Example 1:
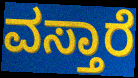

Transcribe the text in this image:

ವಸ್ತಾರೆ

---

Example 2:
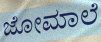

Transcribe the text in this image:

ಜೋಮಾಲೆ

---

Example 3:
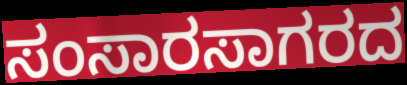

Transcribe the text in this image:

ಸಂಸಾರಸಾಗರದ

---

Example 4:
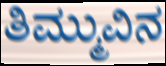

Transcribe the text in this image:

ತಿಮ್ಮುವಿನ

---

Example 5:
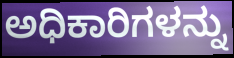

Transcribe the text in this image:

ಅಧಿಕಾರಿಗಳನ್ನು